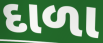
દાળા